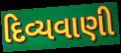
દિવ્યવાણી